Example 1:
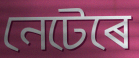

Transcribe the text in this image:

নেটেৰে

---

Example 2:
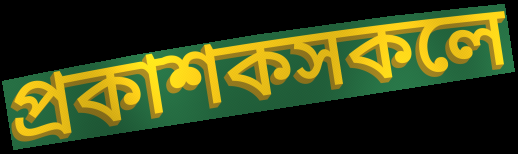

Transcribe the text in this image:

প্ৰকাশকসকলে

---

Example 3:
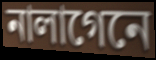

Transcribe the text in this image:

নালাগেনে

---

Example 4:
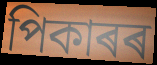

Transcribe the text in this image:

পিকাৰৰ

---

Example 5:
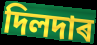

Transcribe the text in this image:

দিলদাৰ